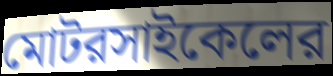
মোটরসাইকেলের